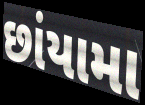
છાંયામા